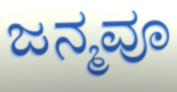
ಜನ್ಮವೂ